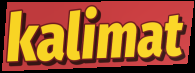
kalimat